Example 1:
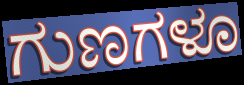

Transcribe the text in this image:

ಗುಣಗಳೂ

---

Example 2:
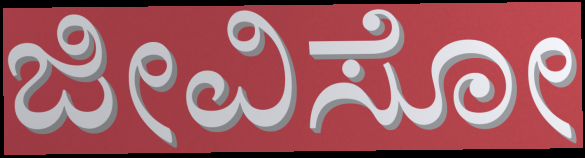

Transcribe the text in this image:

ಜೀವಿಸೋ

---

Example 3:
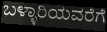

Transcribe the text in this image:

ಬಳ್ಳಾರಿಯವರೆಗೆ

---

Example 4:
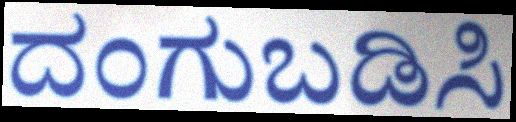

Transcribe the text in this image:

ದಂಗುಬಡಿಸಿ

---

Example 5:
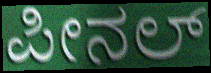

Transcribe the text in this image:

ಪೀನಲ್